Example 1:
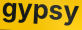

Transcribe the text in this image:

gypsy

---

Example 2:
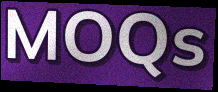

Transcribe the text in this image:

MOQs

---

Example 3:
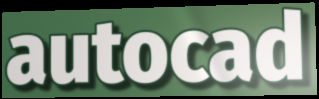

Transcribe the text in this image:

autocad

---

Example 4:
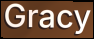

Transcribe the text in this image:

Gracy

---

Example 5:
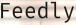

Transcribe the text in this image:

Feedly